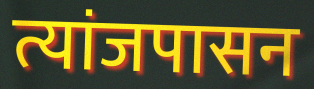
त्यांजपासन